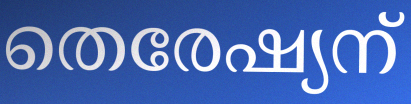
തെരേഷ്യന്